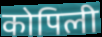
कोपिली